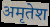
अमृतेश